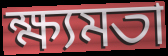
ক্ষ্যমতা